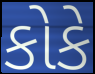
કોકે